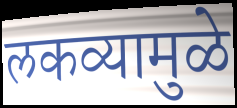
लकव्यामुळे